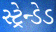
સ્ટ્રેન્ડેડ